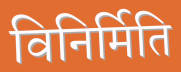
विनिर्मिति